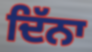
ਦਿੱਨਾ